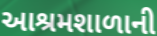
આશ્રમશાળાની